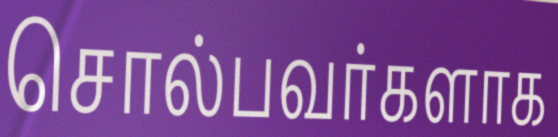
சொல்பவர்களாக